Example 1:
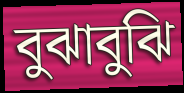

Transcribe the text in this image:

বুঝাবুঝি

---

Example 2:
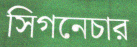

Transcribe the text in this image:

সিগনেচার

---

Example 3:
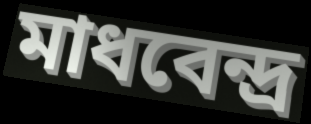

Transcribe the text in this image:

মাধবেন্দ্র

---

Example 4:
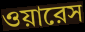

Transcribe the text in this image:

ওয়ারেস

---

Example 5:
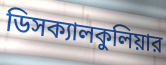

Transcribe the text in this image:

ডিসক্যালকুলিয়ার